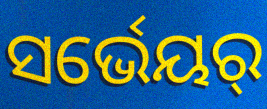
ସର୍ଭେୟର୍